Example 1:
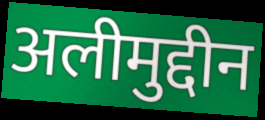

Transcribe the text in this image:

अलीमुद्दीन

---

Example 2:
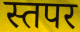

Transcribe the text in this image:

स्तपर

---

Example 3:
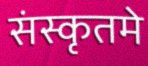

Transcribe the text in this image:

संस्कृतमे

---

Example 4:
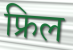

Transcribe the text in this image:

फ्रिल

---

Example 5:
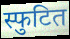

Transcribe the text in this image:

स्फुटित